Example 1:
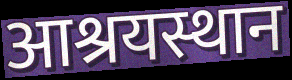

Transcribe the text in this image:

आश्रयस्थान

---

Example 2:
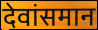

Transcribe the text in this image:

देवांसमान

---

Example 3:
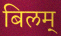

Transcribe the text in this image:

बिलम्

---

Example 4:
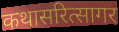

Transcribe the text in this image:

कथासरित्सागर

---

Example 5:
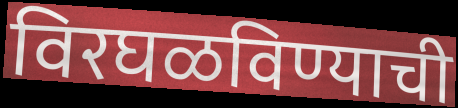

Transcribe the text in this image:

विरघळविण्याची